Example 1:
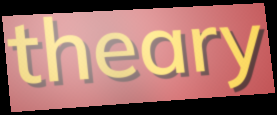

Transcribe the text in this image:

theary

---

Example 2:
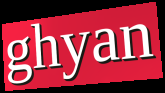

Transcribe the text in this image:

ghyan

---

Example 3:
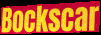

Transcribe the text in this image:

Bockscar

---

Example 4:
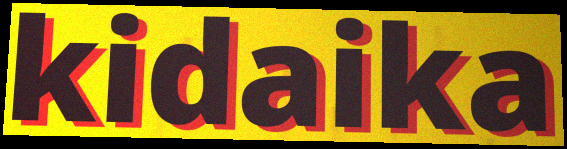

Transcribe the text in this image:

kidaika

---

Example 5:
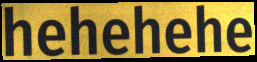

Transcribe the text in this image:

hehehehe